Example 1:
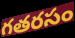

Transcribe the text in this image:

గతరసం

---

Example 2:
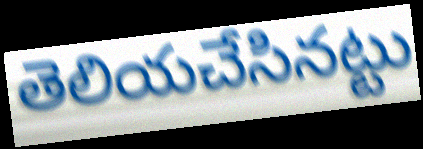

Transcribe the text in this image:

తెలియచేసినట్టు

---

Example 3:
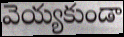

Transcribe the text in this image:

వెయ్యకుండా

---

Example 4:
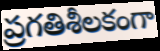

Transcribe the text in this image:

ప్రగతిశీలకంగా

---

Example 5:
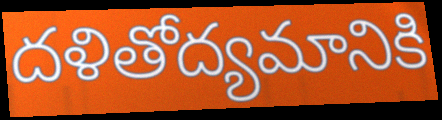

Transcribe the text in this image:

దళితోద్యమానికి